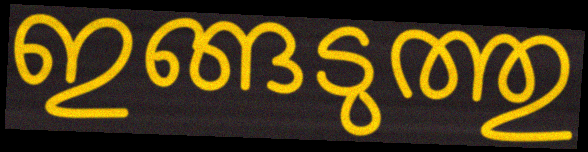
ഇങ്ങടുത്തു